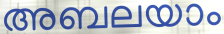
അബലയാം